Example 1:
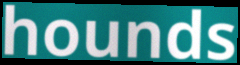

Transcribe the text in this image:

hounds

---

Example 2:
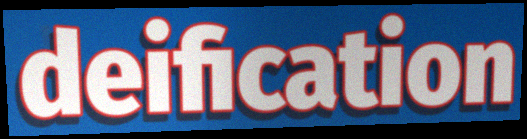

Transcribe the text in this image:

deification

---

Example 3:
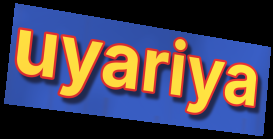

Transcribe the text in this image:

uyariya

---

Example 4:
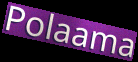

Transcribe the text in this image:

Polaama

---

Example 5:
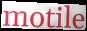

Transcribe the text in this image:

motile